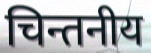
चिन्तनीय